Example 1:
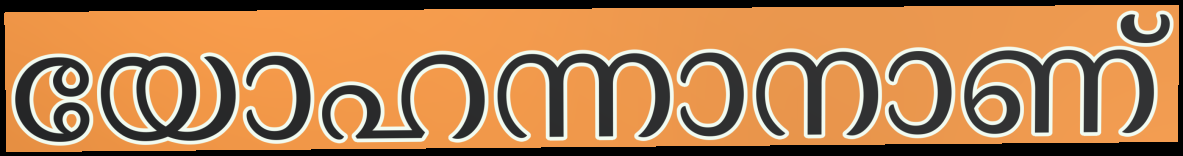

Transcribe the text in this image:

യോഹന്നാനാണ്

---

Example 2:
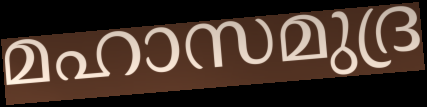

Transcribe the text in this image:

മഹാസമുദ്ര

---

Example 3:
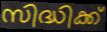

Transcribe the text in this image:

സിദ്ധിക്ക്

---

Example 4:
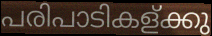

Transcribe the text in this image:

പരിപാടികള്ക്കു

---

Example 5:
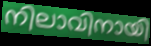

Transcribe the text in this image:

നിലാവിനായി